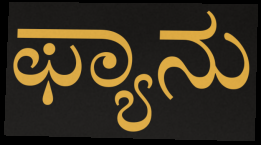
ಫ್ಯಾನು